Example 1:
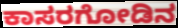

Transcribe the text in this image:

ಕಾಸರಗೋಡಿನ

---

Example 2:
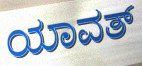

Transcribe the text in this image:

ಯಾವತ್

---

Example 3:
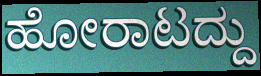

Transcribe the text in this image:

ಹೋರಾಟದ್ದು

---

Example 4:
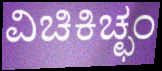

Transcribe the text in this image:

ವಿಚಿಕಿಚ್ಛಂ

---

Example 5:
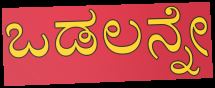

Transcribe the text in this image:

ಒಡಲನ್ನೇ